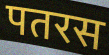
पतरस